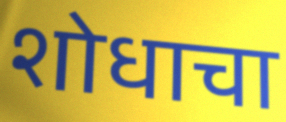
शोधाचा